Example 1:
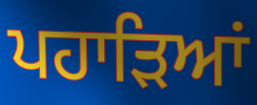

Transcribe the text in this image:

ਪਹਾੜਿਆਂ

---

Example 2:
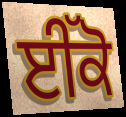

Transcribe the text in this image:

ਈੱਕੋ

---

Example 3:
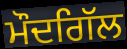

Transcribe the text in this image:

ਮੌਦਗਿੱਲ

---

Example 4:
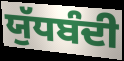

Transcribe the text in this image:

ਯੁੱਧਬੰਦੀ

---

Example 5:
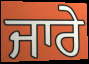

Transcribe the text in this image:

ਜਾਰੇ